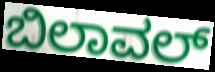
ಬಿಲಾವಲ್